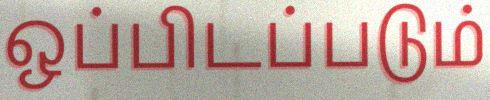
ஒப்பிடப்படும்